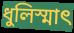
ধুলিস্মাৎ